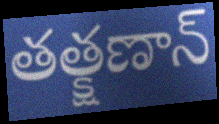
తత్క్షణాన్